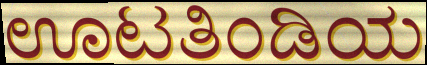
ಊಟತಿಂಡಿಯ